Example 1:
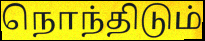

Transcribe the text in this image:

நொந்திடும்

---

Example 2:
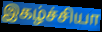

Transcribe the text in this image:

இகழ்ச்சியா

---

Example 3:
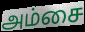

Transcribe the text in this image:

அம்சை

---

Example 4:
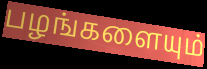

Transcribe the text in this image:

பழங்களையும்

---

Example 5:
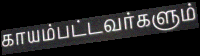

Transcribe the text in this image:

காயம்பட்டவர்களும்